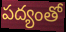
పద్యంతో